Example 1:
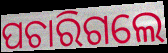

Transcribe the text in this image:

ପଚାରିଗଲେ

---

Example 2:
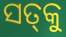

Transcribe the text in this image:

ସତ୍‌କୁ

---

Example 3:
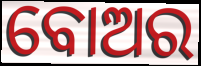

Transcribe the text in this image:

ବୋଅର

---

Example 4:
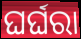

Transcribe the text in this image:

ଘର୍ଘରା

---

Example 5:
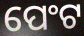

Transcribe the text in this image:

ପେଂଟ